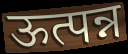
ऊत्पन्न